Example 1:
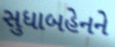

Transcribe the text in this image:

સુધાબહેનને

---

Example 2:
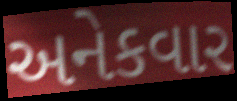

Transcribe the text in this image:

અનેકવાર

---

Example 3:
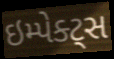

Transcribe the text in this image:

ઇમ્પેક્ટ્સ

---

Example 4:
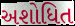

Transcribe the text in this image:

અશોધિત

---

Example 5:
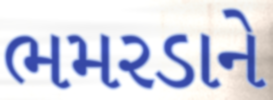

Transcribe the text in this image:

ભમરડાને